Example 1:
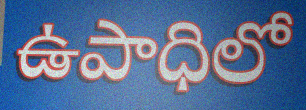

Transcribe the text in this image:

ఉపాధిలో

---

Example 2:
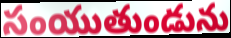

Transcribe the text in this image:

సంయుతుండును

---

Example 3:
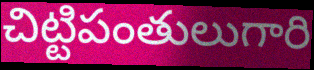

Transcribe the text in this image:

చిట్టిపంతులుగారి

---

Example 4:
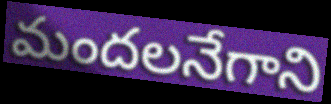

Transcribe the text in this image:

మందలనేగాని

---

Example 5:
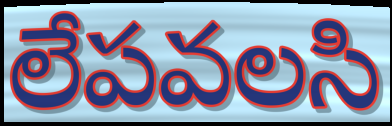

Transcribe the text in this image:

లేపవలసి